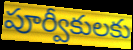
పూర్వీకులకు